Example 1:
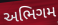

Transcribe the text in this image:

અભિગમ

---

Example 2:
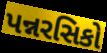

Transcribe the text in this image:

પન્નરસિકો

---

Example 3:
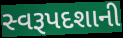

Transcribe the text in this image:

સ્વરૂપદશાની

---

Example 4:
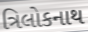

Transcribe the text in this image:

ત્રિલોકનાથ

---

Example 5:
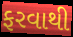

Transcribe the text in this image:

ફરવાથી